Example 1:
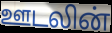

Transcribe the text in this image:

ஊடலின்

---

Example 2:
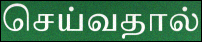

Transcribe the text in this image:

செய்வதால்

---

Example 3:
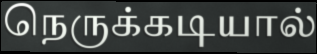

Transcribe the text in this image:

நெருக்கடியால்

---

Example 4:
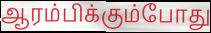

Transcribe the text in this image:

ஆரம்பிக்கும்போது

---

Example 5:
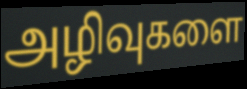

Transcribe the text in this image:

அழிவுகளை